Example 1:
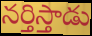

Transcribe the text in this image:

నర్తిస్తాడు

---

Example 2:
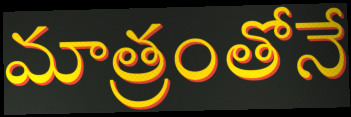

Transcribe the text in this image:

మాత్రంతోనే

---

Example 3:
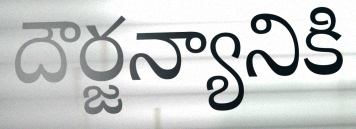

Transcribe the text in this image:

దౌర్జన్యానికి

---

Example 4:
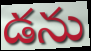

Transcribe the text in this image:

డను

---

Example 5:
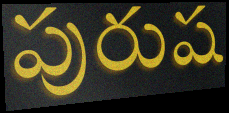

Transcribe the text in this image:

పురుష